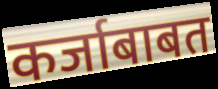
कर्जाबाबत